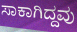
ಸಾಕಾಗಿದ್ದವು